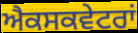
ਐਕਸਕਵੇਟਰਾਂ